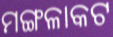
ମଙ୍ଗଳାକଟ